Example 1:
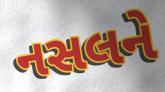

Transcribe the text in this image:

નસલને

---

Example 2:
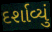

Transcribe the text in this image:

દર્શાવ્યું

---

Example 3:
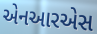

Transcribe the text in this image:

એનઆરએસ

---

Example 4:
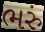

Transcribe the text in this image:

ભરું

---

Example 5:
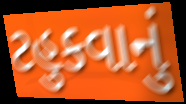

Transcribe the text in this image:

ટહુકવાનું